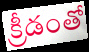
క్రీడంతో